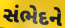
સંભેદને